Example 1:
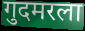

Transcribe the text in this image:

गुदमरला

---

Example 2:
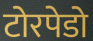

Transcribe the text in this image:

टोरपेडो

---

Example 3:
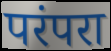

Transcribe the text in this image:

परंपरा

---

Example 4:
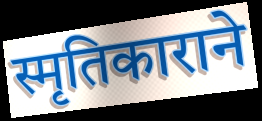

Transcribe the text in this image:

स्मृतिकाराने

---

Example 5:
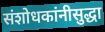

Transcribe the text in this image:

संशोधकांनीसुद्धा